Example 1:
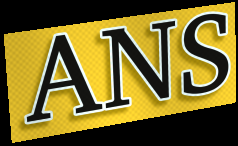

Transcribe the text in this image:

ANS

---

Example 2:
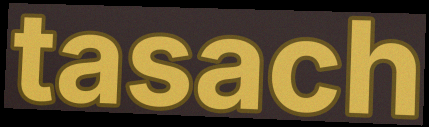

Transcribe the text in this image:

tasach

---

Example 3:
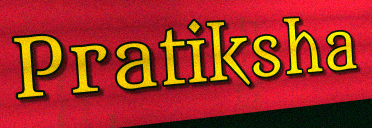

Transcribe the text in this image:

Pratiksha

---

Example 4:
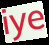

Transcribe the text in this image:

iye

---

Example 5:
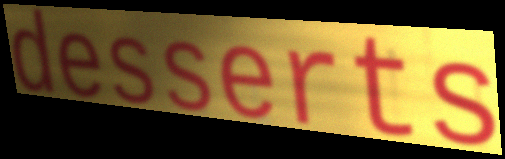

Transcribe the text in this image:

desserts